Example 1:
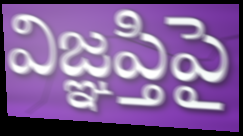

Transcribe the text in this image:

విజ్ఞప్తిపై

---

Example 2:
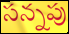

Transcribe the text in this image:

సన్నపు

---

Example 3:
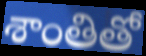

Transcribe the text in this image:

శాంతితో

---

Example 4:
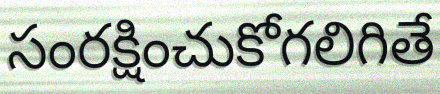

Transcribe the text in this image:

సంరక్షించుకోగలిగితే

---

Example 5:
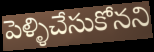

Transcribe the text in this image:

పెళ్ళిచేసుకోనని